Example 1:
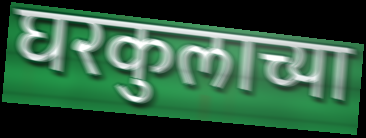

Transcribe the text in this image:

घरकुलाच्या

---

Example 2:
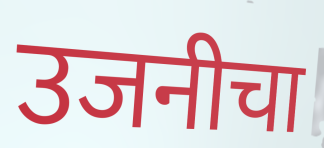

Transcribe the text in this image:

उजनीचा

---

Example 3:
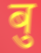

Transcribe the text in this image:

बु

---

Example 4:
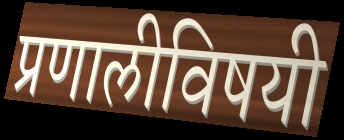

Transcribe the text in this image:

प्रणालीविषयी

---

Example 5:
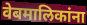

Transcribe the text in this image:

वेबमालिकांना